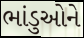
ભાંડુઓને